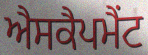
ਐਸਕੈਪਮੈਂਟ